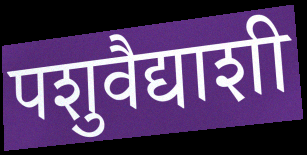
पशुवैद्याशी